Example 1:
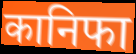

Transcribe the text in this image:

कानिफा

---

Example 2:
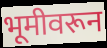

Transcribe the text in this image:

भूमीवरून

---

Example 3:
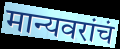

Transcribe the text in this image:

मान्यवरांचं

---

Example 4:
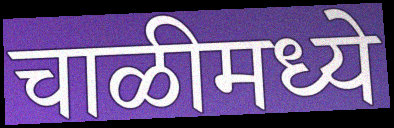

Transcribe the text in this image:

चाळीमध्ये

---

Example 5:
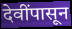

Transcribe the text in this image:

देवींपासून